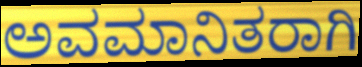
ಅವಮಾನಿತರಾಗಿ